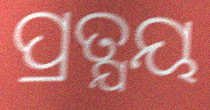
ପ୍ରତ୍ଯୟ